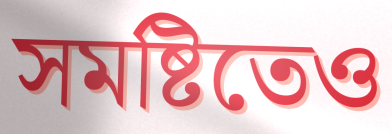
সমষ্টিতেও